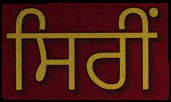
ਸਿਰੀਂ